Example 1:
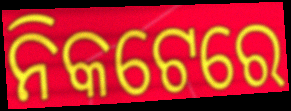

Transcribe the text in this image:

ନିକଟେରେ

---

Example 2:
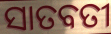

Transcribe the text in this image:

ସାତବତୀ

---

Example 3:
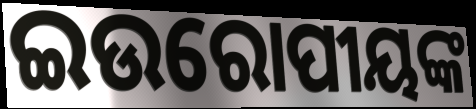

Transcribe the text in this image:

ଇଉରୋପୀୟଙ୍କ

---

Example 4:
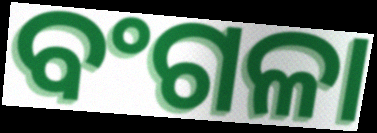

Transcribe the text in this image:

ବଂଗଳା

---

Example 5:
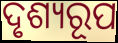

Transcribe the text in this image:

ଦୃଶ୍ୟରୂପ